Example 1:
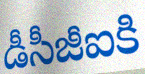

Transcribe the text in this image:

డీసీజీఐకి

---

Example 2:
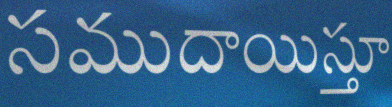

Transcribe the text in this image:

సముదాయిస్తూ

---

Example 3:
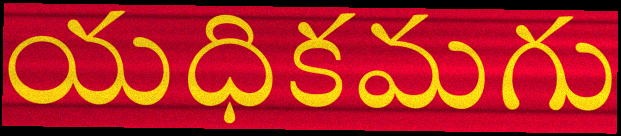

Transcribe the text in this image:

యధికమగు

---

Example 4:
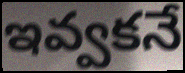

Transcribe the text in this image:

ఇవ్వకనే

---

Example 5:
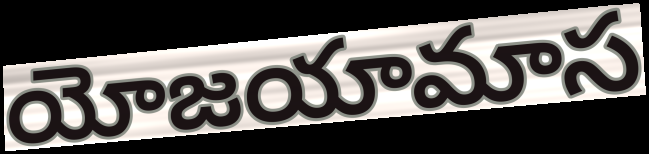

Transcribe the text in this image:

యోజయామాస